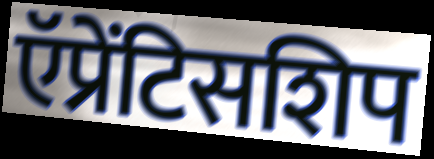
ऍप्रेंटिसशिप